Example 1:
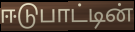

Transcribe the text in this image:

ஈடுபாட்டின்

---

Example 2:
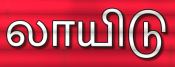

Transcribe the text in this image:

லாயிடு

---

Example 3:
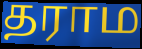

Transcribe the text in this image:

தராம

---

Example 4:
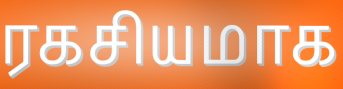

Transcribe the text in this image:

ரகசியமாக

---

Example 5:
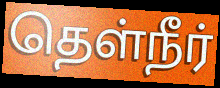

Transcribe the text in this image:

தெள்நீர்